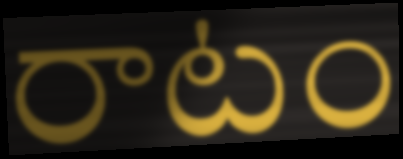
రాటం